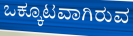
ಒಕ್ಕೂಟವಾಗಿರುವ